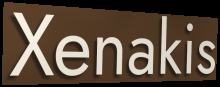
Xenakis